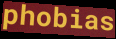
phobias